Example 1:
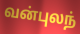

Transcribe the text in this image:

வன்புலந்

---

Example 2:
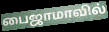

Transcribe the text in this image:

பைஜாமாவில்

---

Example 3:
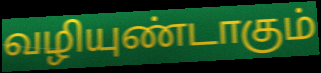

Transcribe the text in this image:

வழியுண்டாகும்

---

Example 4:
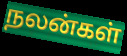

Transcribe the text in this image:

நலன்கள்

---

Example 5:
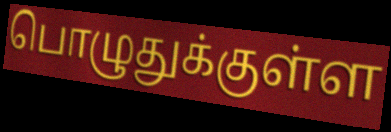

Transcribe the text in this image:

பொழுதுக்குள்ள